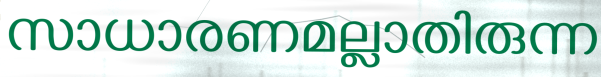
സാധാരണമല്ലാതിരുന്ന